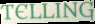
TELLING